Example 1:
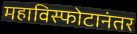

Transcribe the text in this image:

महाविस्फोटानंतर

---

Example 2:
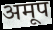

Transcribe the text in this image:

अमूप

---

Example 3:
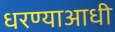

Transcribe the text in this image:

धरण्याआधी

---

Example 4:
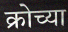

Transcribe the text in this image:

क्रोच्या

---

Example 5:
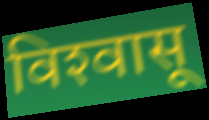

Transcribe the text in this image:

विश्वासू